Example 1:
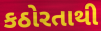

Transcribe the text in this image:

કઠોરતાથી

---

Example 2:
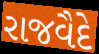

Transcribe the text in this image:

રાજવૈદે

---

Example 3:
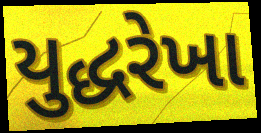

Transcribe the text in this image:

યુદ્ધરેખા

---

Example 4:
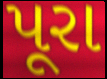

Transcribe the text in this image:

પૂરા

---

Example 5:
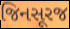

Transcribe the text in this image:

જિનસૂરજ